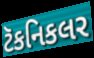
ટૅકનિકલર